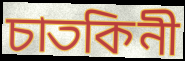
চাতকিনী